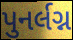
પુનર્લગ્ન